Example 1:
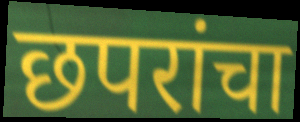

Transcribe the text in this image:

छपरांचा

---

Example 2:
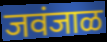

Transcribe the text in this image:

जवंजाळ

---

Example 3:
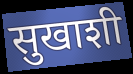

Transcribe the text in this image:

सुखाशी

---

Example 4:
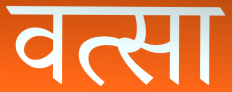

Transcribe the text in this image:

वत्सा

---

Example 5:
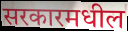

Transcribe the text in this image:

सरकारमधील